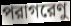
পরাগরেণু